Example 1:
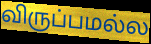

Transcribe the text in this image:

விருப்பமல்ல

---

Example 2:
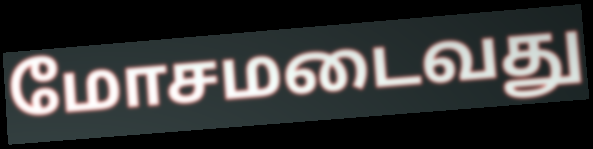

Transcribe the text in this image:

மோசமடைவது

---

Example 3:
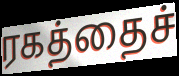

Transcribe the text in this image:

ரகத்தைச்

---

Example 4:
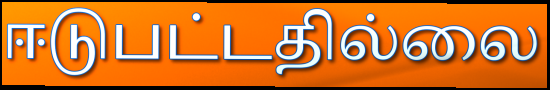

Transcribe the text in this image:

ஈடுபட்டதில்லை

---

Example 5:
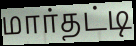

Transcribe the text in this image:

மார்தட்டி